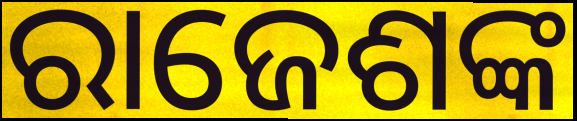
ରାଜେଶଙ୍କ